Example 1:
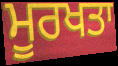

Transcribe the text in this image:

ਮੂਰਖਤਾ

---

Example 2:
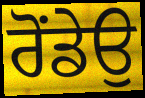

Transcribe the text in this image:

ਰੋਂਡੇਉ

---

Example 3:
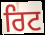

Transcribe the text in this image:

ਰਿਟ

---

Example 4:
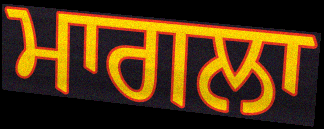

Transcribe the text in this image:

ਮਾਗਲਾ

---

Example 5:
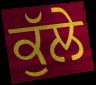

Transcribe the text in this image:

ਕੁੱਲੇ